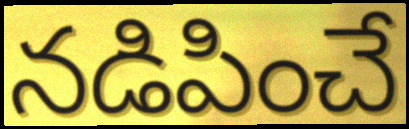
నడిపించే